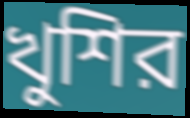
খুশির